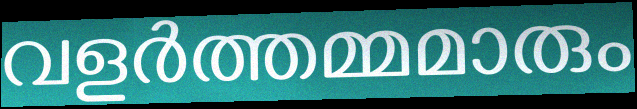
വളർത്തമ്മമാരും